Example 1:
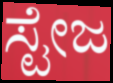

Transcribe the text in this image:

ಸ್ಟೇಜ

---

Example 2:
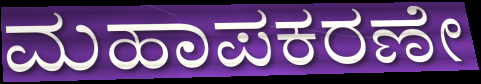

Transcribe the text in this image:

ಮಹಾಪಕರಣೇ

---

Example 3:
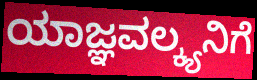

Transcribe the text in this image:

ಯಾಜ್ಞವಲ್ಕ್ಯನಿಗೆ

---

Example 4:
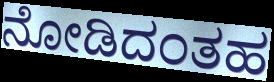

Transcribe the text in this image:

ನೋಡಿದಂತಹ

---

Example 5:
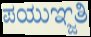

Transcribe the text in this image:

ಪಯುಞ್ಜತಿ